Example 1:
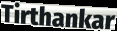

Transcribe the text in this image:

Tirthankar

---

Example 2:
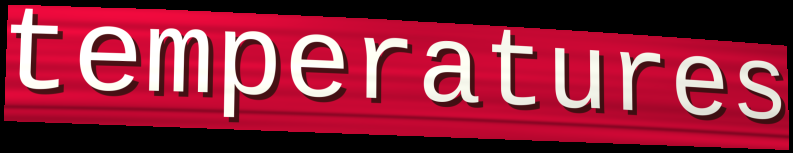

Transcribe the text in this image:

temperatures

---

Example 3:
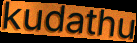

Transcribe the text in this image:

kudathu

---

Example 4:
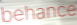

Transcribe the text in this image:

behance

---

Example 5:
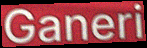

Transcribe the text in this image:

Ganeri